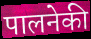
पालनेकी